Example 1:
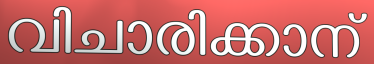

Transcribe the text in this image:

വിചാരിക്കാന്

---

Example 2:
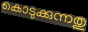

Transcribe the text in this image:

കൊടുക്കുന്നതു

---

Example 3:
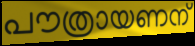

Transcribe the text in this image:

പൗത്രായണന്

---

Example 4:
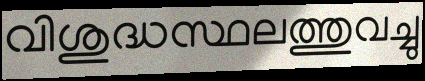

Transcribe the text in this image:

വിശുദ്ധസ്ഥലത്തുവച്ചു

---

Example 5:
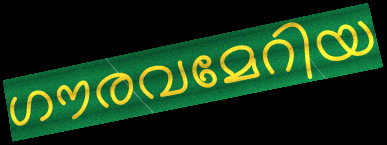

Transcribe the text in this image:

ഗൗരവമേറിയ